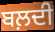
ਬਲ਼ਦੀ